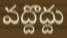
వద్దొద్దు